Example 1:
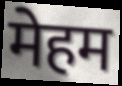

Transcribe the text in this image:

मेहम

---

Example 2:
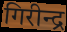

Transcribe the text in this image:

गिरीन्द्र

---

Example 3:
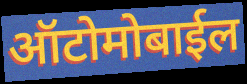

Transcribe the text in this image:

ऑटोमोबाईल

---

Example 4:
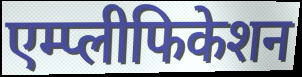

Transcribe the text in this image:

एम्प्लीफिकेशन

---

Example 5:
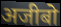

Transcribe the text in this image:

अजीबो